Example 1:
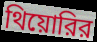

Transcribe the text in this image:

থিয়োরির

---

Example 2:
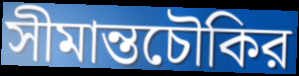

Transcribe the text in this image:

সীমান্তচৌকির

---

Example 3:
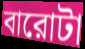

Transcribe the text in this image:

বারোটা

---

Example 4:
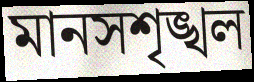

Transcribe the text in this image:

মানসশৃঙ্খল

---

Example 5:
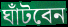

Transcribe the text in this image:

ঘাঁটবেন